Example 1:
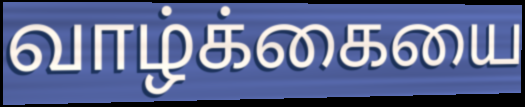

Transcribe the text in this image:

வாழ்க்கையை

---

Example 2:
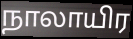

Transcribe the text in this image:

நாலாயிர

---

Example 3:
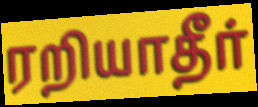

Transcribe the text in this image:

ரறியாதீர்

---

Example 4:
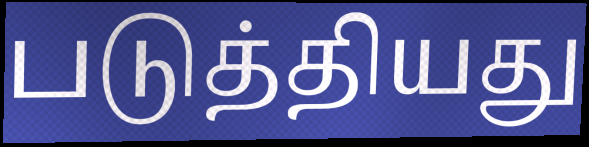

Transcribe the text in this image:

படுத்தியது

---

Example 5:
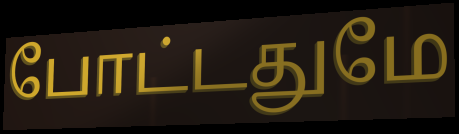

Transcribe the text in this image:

போட்டதுமே